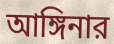
আঙ্গিনার